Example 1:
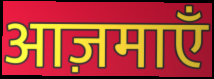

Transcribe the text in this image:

आज़माएँ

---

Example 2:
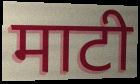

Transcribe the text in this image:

माटी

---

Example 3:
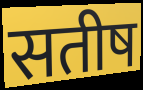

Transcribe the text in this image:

सतीष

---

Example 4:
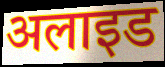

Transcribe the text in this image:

अलाइड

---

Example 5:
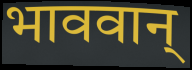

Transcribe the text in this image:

भाववान्